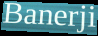
Banerji